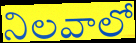
నిలవాలో